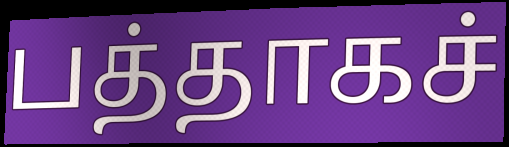
பத்தாகச்